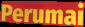
Perumai